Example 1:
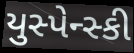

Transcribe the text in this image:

યુસ્પેન્સ્કી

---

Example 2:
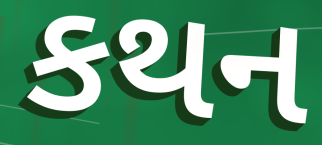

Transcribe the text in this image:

કથન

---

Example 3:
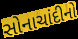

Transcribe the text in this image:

સોનાચાંદીનો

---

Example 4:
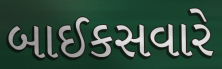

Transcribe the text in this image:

બાઈકસવારે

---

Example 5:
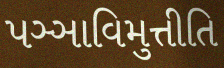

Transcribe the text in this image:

પઞ્ઞાવિમુત્તીતિ